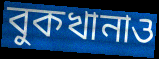
বুকখানাও